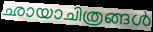
ഛായാചിത്രങ്ങൾ